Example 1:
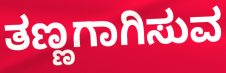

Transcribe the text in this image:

ತಣ್ಣಗಾಗಿಸುವ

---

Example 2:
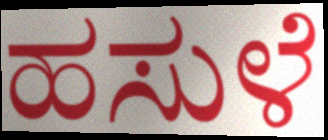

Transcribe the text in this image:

ಹಸುಳೆ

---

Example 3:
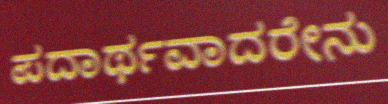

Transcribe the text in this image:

ಪದಾರ್ಥವಾದರೇನು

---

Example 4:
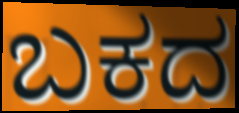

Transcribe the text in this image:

ಬಕದ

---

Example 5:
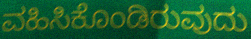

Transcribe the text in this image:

ವಹಿಸಿಕೊಂಡಿರುವುದು